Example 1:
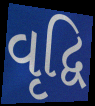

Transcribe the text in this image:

વૃદ્વિ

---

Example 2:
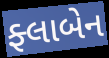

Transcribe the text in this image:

ફ્લાબેન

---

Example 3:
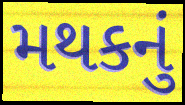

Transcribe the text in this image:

મથકનું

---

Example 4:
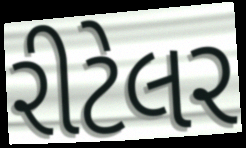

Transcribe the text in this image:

રીટેલર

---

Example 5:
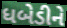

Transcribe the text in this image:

ધબેડીને